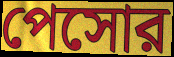
পেসোর